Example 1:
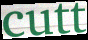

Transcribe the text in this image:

cutt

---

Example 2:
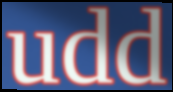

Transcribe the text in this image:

udd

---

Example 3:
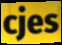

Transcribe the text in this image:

cjes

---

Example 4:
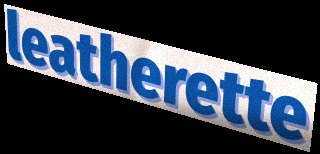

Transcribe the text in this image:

leatherette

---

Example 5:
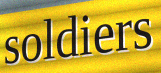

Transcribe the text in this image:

soldiers